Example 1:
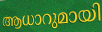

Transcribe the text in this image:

ആധാറുമായി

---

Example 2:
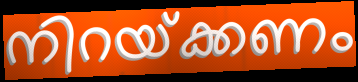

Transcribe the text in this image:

നിറയ്‌ക്കണം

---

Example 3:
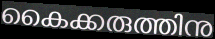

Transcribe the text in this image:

കൈക്കരുത്തിനു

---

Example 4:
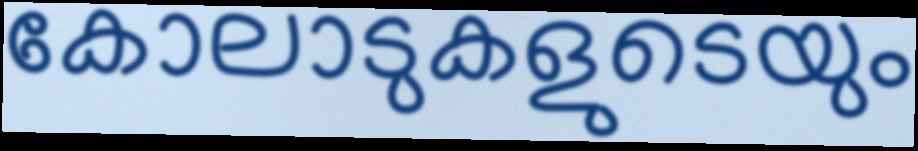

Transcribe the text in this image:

കോലാടുകളുടെയും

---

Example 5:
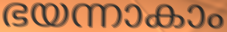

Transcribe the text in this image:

ഭയന്നാകാം